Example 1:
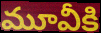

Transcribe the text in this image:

మూవీకి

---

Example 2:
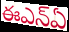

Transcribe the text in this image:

ఈఎన్ఏ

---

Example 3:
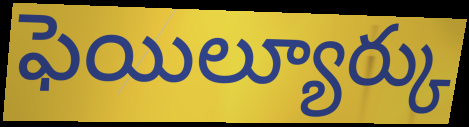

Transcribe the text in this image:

ఫెయిల్యూర్కు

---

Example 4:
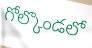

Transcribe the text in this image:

గోల్కొండలో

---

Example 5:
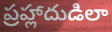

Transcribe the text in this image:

ప్రహ్లాదుడిలా